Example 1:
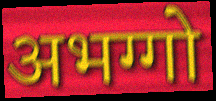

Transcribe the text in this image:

अभग्गो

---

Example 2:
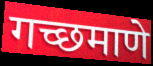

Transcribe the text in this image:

गच्छमाणे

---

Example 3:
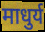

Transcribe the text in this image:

माधुर्य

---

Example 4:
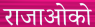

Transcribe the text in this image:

राजाओको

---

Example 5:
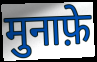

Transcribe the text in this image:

मुनाफ़े